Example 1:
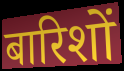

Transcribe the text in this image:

बारिशों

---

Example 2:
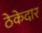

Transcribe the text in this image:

ठेकेदार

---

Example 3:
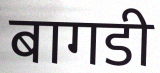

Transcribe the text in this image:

बागडी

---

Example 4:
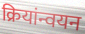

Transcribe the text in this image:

क्रियांन्वयन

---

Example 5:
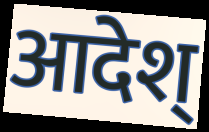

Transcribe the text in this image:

आदेश्